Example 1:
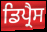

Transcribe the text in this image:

ਡਿਪ੍ਰੈਸ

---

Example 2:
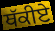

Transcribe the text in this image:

ਥੱਕੀਏ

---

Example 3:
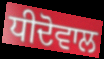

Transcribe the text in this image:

ਧੀਦੋਵਾਲ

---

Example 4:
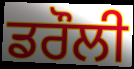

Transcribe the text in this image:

ਡਰੌਲੀ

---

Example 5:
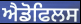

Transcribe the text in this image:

ਐਡੋਫਿਲਸ